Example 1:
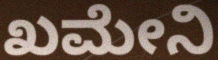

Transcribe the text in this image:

ಖಮೇನಿ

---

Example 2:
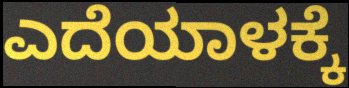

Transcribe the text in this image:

ಎದೆಯಾಳಕ್ಕೆ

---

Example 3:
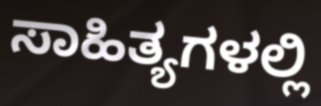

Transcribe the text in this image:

ಸಾಹಿತ್ಯಗಳಲ್ಲಿ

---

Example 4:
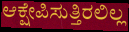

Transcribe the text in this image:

ಆಕ್ಷೇಪಿಸುತ್ತಿರಲಿಲ್ಲ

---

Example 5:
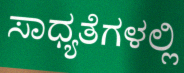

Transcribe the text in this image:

ಸಾಧ್ಯತೆಗಳಲ್ಲಿ